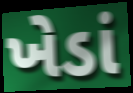
ખેડાં